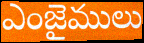
ఎంజైములు